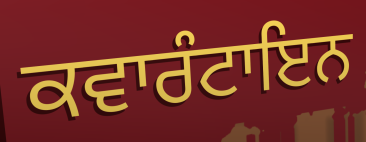
ਕਵਾਰੰਟਾਇਨ